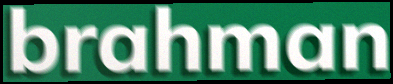
brahman